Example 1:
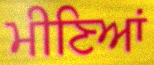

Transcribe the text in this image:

ਮੀਣਿਆਂ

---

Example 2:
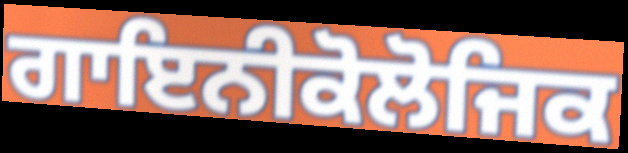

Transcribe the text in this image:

ਗਾਇਨੀਕੋਲੋਜਿਕ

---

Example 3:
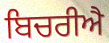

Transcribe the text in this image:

ਬਿਚਰੀਐ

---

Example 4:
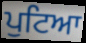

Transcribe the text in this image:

ਪੁਟਿਆ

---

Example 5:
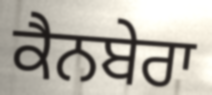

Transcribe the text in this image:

ਕੈਨਬੇਰਾ